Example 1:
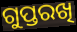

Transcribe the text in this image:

ଗୁପ୍ତରଖି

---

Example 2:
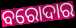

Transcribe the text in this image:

ବରୋଦାର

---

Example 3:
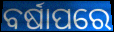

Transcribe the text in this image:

ବର୍ଷାପରେ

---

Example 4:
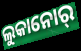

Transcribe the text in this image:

ଲୁକାନୋର୍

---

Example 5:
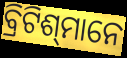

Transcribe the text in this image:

ବ୍ରିଟିଶ୍‌ମାନେ